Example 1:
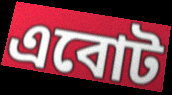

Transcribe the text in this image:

এবোট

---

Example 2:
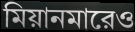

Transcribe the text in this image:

মিয়ানমারেও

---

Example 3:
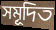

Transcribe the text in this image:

সমূদিত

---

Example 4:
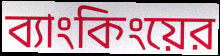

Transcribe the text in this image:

ব্যাংকিংয়ের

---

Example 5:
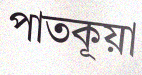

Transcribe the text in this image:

পাতকূয়া